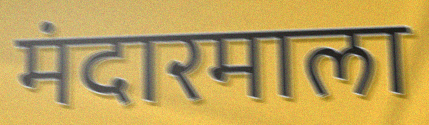
मंदारमाला